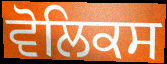
ਵੋਲਿਕਸ